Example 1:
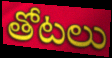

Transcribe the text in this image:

తోటలు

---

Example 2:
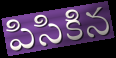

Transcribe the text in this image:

పిసికిన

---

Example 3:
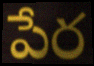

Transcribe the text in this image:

పేర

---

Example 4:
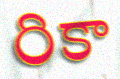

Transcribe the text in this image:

రికా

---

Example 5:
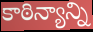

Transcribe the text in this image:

కాఠిన్యాన్ని